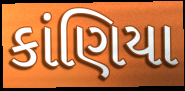
કાંણિયા